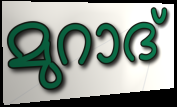
മുറാദ്